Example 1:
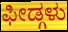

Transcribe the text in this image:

ಫೀಡ್ಗಳು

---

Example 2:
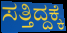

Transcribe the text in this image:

ಸತ್ತಿದ್ದಕ್ಕೆ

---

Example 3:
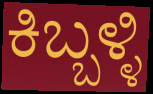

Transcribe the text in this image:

ಕಿಬ್ಬಳ್ಳಿ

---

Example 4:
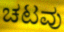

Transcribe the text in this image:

ಚಟವು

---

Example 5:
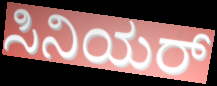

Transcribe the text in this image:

ಸಿನಿಯರ್